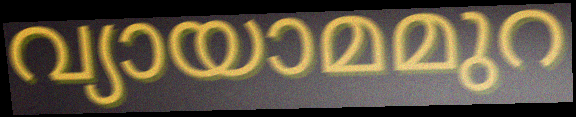
വ്യായാമമുറ